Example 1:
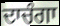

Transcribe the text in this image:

ਦਾਚੰਗਾ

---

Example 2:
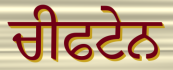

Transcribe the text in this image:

ਚੀਫਟੇਨ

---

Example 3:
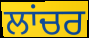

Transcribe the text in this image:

ਲਾਂਚਰ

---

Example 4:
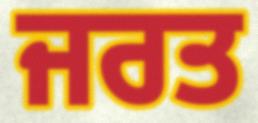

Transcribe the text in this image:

ਜਰਤ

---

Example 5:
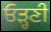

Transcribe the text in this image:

ਓੜ੍ਹਣੀ